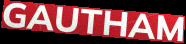
GAUTHAM